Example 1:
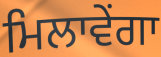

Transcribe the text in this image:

ਮਿਲਾਵੇਂਗਾ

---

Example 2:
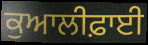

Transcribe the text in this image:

ਕੁਆਲੀਫ਼ਾਈ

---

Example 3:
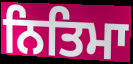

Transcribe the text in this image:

ਨਿਤਿਮਾ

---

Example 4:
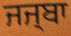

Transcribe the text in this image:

ਜਜ੍ਬਾ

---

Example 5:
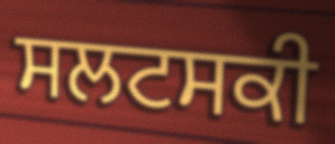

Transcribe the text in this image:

ਸਲਟਸਕੀ